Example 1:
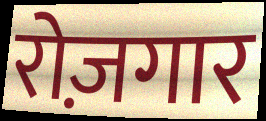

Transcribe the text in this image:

रोज़गार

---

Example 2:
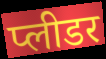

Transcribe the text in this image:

प्लीडर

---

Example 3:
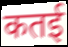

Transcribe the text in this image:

कतई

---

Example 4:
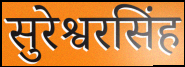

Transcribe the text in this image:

सुरेश्वरसिंह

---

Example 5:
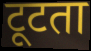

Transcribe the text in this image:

टूटता